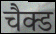
चैक्ड